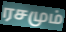
ரசமும்